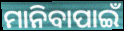
ମାନିବାପାଇଁ